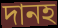
দানহ